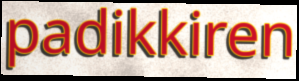
padikkiren